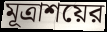
মূত্রাশয়ের